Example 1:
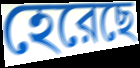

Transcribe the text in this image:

হেরেছে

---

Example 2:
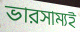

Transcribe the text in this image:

ভারসাম্যই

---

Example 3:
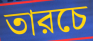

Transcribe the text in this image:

তারচে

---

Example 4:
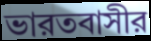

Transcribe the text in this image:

ভারতবাসীর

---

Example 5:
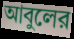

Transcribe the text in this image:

আবুলের